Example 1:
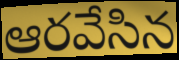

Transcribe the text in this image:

ఆరవేసిన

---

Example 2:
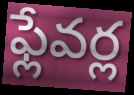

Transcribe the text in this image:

ఫ్లేవర్ల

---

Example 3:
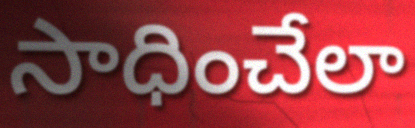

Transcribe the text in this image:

సాధించేలా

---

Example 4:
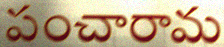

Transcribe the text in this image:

పంచారామ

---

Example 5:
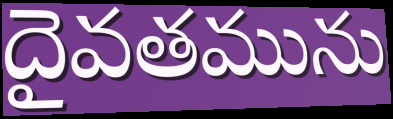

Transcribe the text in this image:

దైవతమును